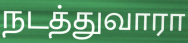
நடத்துவாரா